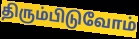
திரும்பிடுவோம்